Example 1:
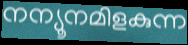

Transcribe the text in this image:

നന്യൂനമിളകുന്ന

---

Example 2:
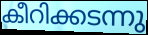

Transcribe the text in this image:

കീറിക്കടന്നു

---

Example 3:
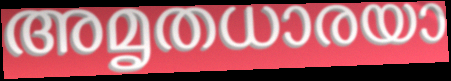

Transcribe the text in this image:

അമൃതധാരയാ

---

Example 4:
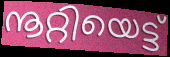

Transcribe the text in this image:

നൂറ്റിയെട്ട്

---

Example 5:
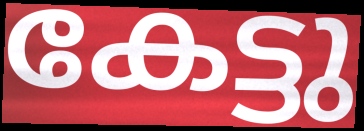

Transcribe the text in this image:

കേട്ടു